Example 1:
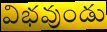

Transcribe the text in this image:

విభవుండు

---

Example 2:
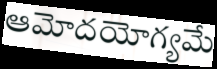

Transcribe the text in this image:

ఆమోదయోగ్యమే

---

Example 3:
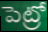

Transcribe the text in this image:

పెట్రో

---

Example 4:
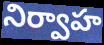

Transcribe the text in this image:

నిర్వాహ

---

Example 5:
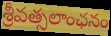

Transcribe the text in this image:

శ్రీవత్సలాంఛనం